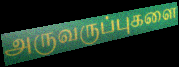
அருவருப்புகளை